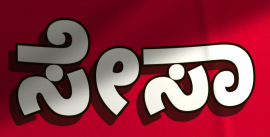
ಸೇಸಾ